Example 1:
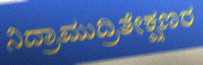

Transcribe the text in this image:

ನಿದ್ರಾಮುದ್ರಿತೇಕ್ಷಣರ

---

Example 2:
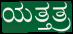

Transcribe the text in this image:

ಯತ್ತತ್ರ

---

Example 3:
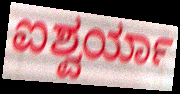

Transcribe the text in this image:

ಐಶ್ವರ್ಯಾ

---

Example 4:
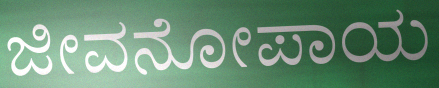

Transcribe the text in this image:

ಜೀವನೋಪಾಯ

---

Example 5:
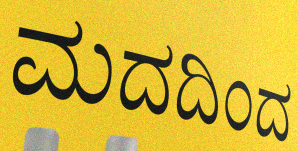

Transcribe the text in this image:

ಮದದಿಂದ